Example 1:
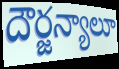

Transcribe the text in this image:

దౌర్జన్యాలూ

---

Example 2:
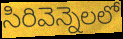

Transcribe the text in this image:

సిరివెన్నెలలో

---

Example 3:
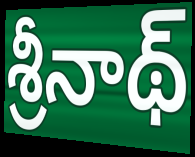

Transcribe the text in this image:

శ్రీనాథ్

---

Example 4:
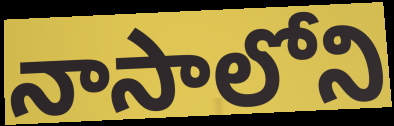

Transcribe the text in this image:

నాసాలోని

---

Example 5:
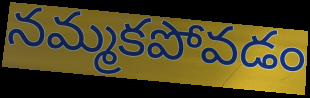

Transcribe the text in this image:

నమ్మకపోవడం